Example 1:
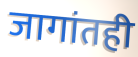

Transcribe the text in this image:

जागांतही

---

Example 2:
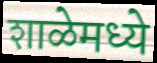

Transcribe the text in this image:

शाळेमध्ये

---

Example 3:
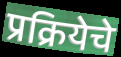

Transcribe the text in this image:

प्रक्रियेचे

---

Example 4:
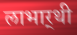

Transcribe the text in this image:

लाभार्थी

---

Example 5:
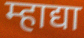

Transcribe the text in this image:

म्हाद्या